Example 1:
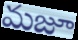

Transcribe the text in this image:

మజూ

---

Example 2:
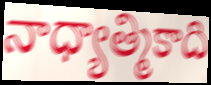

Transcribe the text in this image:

నాధ్యాత్మికాది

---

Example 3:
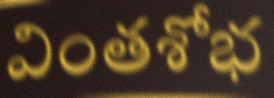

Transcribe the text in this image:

వింతశోభ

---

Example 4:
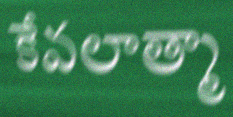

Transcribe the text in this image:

కేవలాత్మా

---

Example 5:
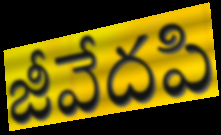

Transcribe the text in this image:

జీవేదపి